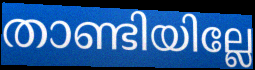
താണ്ടിയില്ലേ